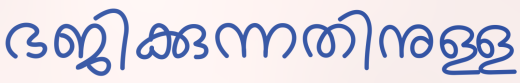
ഭജിക്കുന്നതിനുള്ള